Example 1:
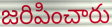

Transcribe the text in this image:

జరిపించారు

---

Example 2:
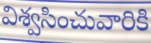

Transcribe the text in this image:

విశ్వసించువారికి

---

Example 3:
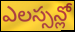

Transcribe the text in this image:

ఎలస్సన్లో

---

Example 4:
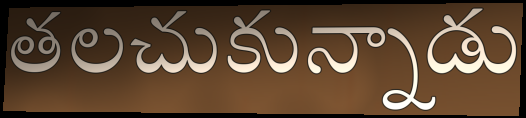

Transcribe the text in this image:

తలచుకున్నాడు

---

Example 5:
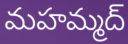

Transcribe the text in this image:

మహమ్మద్